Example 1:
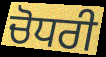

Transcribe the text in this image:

ਚੋਧਰੀ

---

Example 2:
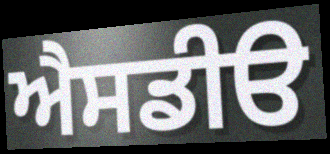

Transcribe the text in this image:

ਐਸਡੀੳ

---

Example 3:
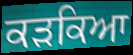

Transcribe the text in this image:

ਕੜਕਿਆ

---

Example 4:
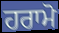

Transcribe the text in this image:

ਹਰਾਮੋ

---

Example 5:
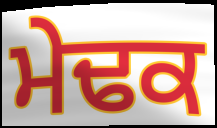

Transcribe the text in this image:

ਮੇਢਕ